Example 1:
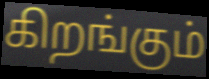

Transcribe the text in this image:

கிறங்கும்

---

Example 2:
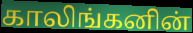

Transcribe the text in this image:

காலிங்கனின்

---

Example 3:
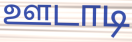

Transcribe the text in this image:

ஊடாடி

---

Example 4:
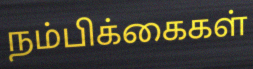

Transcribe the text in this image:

நம்பிக்கைகள்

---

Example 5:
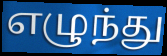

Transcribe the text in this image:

எழுந்து